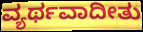
ವ್ಯರ್ಥವಾದೀತು